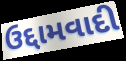
ઉદ્દામવાદી